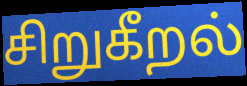
சிறுகீறல்